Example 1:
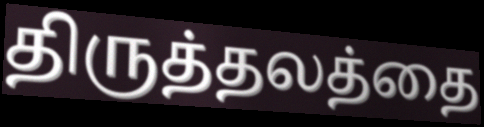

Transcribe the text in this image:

திருத்தலத்தை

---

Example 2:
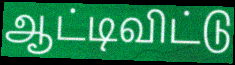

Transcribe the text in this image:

ஆட்டிவிட்டு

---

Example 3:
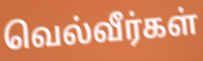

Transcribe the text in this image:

வெல்வீர்கள்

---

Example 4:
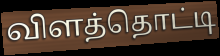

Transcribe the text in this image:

விளத்தொட்டி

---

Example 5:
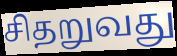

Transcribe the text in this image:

சிதறுவது